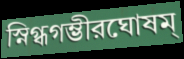
স্নিগ্ধগম্ভীরঘোষম্